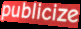
publicize